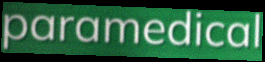
paramedical